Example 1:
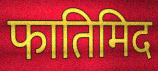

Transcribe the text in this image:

फातिमिद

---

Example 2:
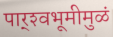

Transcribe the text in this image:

पार्श्वभूमीमुळं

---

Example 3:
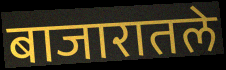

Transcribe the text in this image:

बाजारातले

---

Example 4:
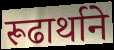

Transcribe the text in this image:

रूढार्थाने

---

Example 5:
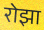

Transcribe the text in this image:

रोझा